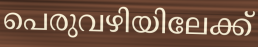
പെരുവഴിയിലേക്ക്